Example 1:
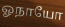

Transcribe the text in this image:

ஓநாயோ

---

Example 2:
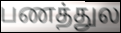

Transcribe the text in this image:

பணத்துல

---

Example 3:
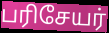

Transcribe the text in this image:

பரிசேயர்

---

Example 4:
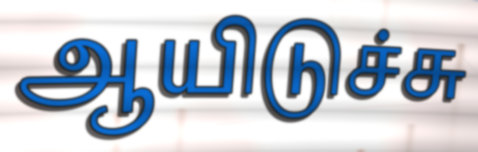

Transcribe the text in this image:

ஆயிடுச்சு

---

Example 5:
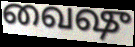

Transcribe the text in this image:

வைஷு